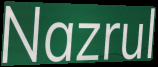
Nazrul